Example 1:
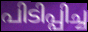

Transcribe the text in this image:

പിടിപ്പിച്ച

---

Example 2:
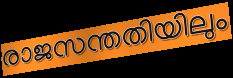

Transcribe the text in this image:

രാജസന്തതിയിലും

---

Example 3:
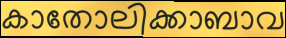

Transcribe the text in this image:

കാതോലിക്കാബാവ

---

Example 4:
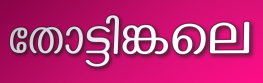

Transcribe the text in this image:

തോട്ടിങ്കലെ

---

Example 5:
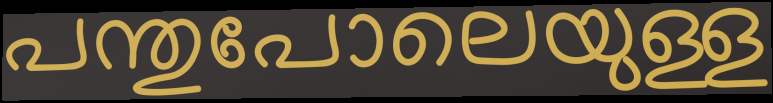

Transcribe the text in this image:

പന്തുപോലെയുള്ള